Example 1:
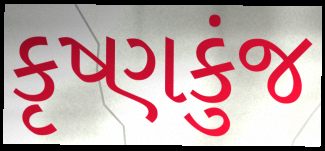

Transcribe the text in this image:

કૃષ્ણકુંજ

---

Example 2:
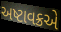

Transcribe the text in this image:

અષ્ટાવક્રએ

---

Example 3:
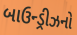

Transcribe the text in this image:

બાઉન્ડ્રીઝનો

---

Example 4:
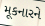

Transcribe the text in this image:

મૂકનારને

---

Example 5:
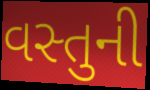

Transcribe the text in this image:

વસ્તુની